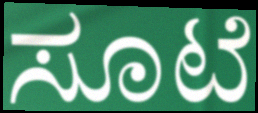
ಸೂಟೆ